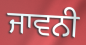
ਜਾਵਨੀ